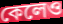
কেলেও